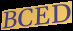
BCED